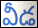
వీడ